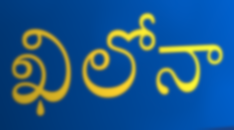
ఖిలోనా